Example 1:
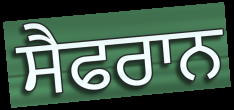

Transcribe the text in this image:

ਸੈਫਰਾਨ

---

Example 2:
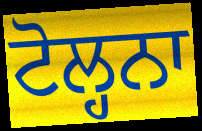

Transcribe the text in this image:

ਟੋਲ੍ਹਨਾ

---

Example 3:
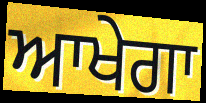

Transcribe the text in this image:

ਆਖੇਗਾ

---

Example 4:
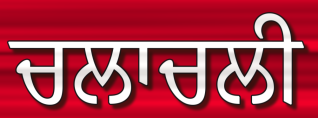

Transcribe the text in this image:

ਚਲਾਚਲੀ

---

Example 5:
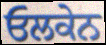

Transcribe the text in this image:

ਓਲਕੇਨ